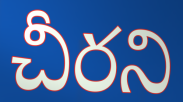
చీరని